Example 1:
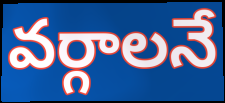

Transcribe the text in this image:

వర్గాలనే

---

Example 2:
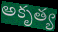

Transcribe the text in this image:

అకృత్య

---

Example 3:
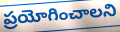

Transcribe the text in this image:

ప్రయోగించాలని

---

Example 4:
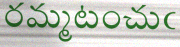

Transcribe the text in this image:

రమ్మటంచుఁ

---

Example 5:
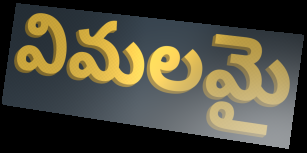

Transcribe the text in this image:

విమలమై